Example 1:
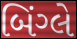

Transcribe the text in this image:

બિંગ્લે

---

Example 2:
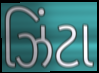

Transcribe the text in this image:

ઝિંટા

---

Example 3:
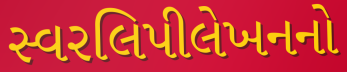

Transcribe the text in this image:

સ્વરલિપીલેખનનો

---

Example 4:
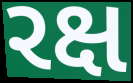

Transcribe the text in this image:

રક્ષ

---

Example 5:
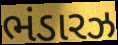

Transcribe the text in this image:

ભંડારઝ